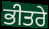
ਭੀਤਰੇ